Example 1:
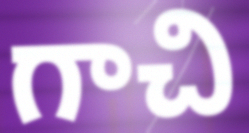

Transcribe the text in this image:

గాచి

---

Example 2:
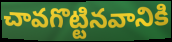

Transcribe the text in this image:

చావగొట్టినవానికి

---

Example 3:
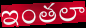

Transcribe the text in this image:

ఇంతలా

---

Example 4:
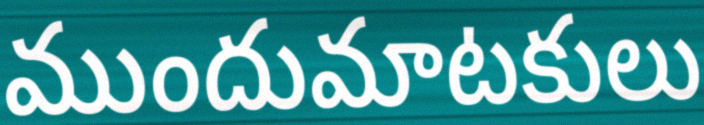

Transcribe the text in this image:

ముందుమాటకులు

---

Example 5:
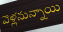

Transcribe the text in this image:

వెళ్లనున్నాయి